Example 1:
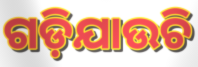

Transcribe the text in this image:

ଗଡ଼ିଯାଉଚି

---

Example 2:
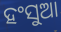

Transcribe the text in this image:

ହଂସୁଆ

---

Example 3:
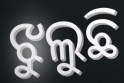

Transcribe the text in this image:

ଝୁଲୁଛି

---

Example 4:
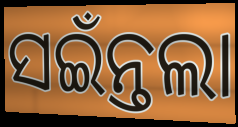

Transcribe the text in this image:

ସଇଁନ୍ତଲା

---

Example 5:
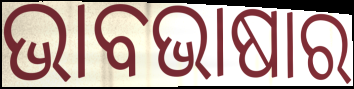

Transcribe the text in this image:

ଭାବଭାଷାର